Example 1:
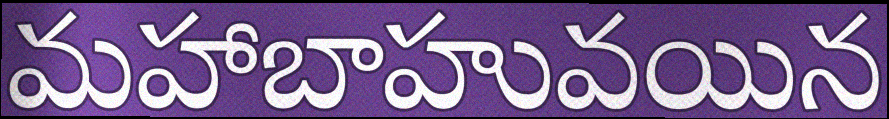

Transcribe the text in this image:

మహాబాహువయిన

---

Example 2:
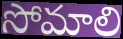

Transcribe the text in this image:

సోమాలి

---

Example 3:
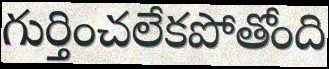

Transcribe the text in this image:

గుర్తించలేకపోతోంది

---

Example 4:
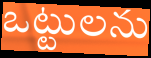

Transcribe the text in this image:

ఒట్టులను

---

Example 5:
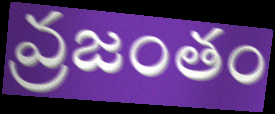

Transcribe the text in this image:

వ్రజంతం